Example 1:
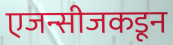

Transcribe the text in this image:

एजन्सीजकडून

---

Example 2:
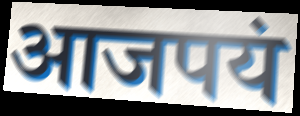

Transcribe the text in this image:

आजपयं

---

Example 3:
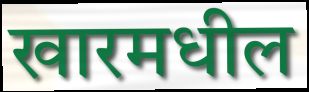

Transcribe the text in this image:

खारमधील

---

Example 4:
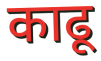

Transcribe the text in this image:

काढू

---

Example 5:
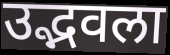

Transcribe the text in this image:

उद्भवला